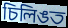
চিলিঙত